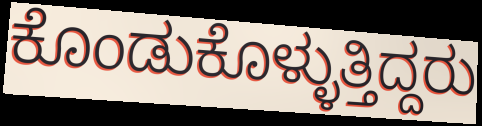
ಕೊಂಡುಕೊಳ್ಳುತ್ತಿದ್ದರು